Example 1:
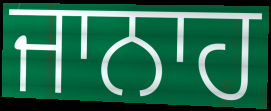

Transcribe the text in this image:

ਜਾਨਾਹ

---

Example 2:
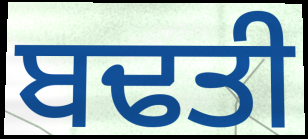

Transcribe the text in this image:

ਬਢਤੀ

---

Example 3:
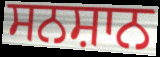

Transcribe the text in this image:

ਸਨਸ਼ਾਨ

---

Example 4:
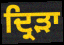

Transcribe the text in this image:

ਦ੍ਰਿੜਾ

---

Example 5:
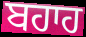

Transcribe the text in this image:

ਬਹਾਹ